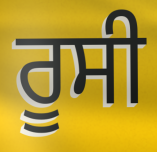
ਰੂਸੀ